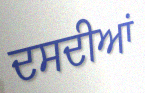
ਦਸਦੀਆਂ